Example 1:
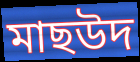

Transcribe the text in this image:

মাছউদ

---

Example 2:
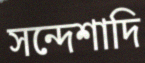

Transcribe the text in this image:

সন্দেশাদি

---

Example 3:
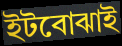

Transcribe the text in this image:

ইটবোঝাই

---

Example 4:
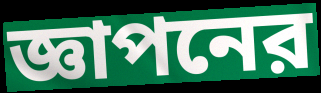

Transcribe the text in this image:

জ্ঞাপনের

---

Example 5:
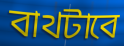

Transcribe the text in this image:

বাথটাবে